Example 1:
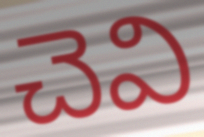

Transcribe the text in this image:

చెవి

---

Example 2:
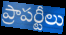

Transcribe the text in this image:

ప్రాపర్టీలు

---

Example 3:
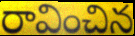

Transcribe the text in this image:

రావించిన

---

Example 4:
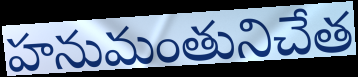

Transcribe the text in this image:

హనుమంతునిచేత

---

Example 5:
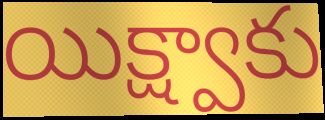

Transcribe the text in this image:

యిక్ష్వాకు